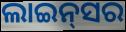
ଲାଇନ୍‍ସର